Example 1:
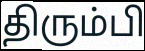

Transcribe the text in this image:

திரும்பி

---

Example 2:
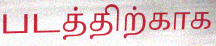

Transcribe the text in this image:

படத்திற்காக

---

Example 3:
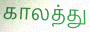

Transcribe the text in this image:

காலத்து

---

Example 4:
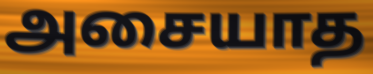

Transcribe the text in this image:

அசையாத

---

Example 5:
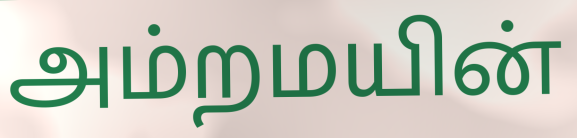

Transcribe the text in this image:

அம்றமயின்